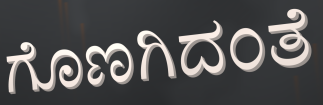
ಗೊಣಗಿದಂತೆ